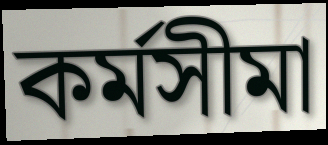
কর্মসীমা